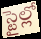
స్టైల్లో